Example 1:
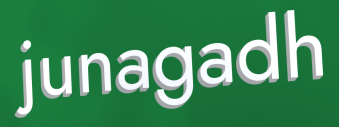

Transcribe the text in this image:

junagadh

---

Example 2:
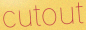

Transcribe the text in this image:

cutout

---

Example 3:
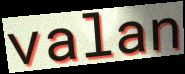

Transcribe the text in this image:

valan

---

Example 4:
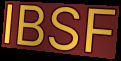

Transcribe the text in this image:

IBSF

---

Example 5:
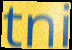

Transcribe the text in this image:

tni